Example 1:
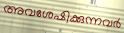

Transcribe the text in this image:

അവശേഷിക്കുന്നവർ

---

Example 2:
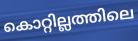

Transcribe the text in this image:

കൊറ്റില്ലത്തിലെ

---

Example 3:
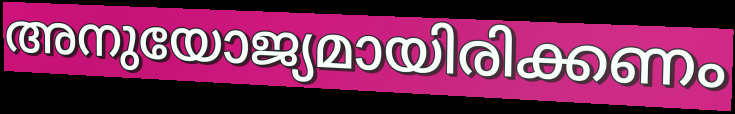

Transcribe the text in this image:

അനുയോജ്യമായിരിക്കണം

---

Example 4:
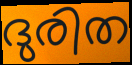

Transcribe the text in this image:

ദുരിത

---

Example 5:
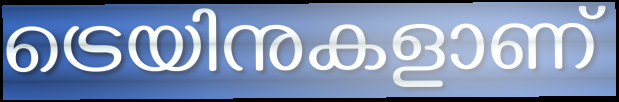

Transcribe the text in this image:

ട്രെയിനുകളാണ്